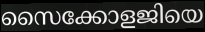
സൈക്കോളജിയെ